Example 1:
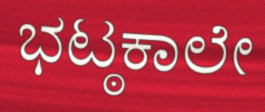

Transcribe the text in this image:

ಭಟ್ಠಕಾಲೇ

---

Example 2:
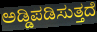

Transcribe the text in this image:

ಅಡ್ಡಿಪಡಿಸುತ್ತದೆ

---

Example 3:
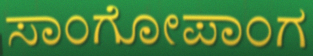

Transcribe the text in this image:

ಸಾಂಗೋಪಾಂಗ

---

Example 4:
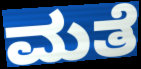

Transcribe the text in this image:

ಮತೆ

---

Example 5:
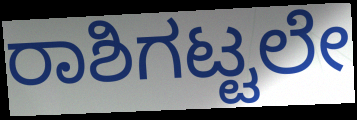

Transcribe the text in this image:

ರಾಶಿಗಟ್ಟಲೇ